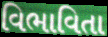
વિભાવિતા